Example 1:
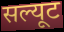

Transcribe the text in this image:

सल्यूट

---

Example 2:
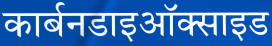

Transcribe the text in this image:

कार्बनडाइऑक्साइड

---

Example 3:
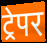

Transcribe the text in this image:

ट्रेपर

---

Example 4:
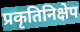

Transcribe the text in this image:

प्रकृतिनिक्षेप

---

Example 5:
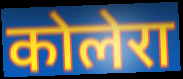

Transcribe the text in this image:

कोलेरा